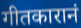
गीतकारानं